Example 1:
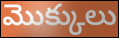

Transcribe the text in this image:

మొక్కులు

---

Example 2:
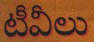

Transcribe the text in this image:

టీవీలు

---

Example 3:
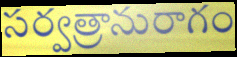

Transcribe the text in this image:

సర్వత్రానురాగం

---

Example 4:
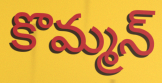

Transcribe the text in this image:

కొమ్మన్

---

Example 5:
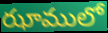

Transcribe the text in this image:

ఝాములో